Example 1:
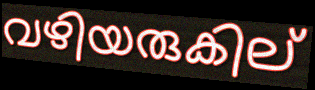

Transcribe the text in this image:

വഴിയരുകില്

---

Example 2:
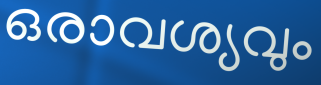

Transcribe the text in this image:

ഒരാവശ്യവും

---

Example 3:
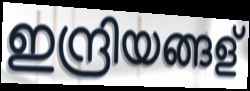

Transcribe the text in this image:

ഇന്ദ്രിയങ്ങള്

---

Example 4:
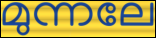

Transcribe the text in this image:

മുന്നലേ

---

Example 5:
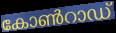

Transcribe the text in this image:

കോൺറാഡ്